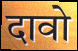
दावो